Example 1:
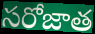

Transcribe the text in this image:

సరోజాత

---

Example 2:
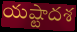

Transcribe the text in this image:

యష్టాదశ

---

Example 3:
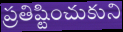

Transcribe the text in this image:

ప్రతిష్టించుకుని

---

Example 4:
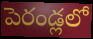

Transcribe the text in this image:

పెరండ్లలో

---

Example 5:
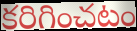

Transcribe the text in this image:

కరిగించటం